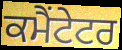
ਕਮੈਂਟੇਟਰ